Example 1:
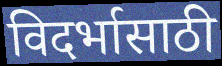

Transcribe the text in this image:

विदर्भासाठी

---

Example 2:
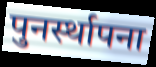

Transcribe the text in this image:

पुनर्स्थापना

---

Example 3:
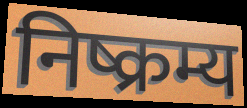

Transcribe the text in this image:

निष्क्रम्य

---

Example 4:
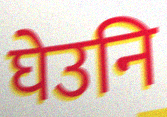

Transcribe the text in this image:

घेउनि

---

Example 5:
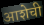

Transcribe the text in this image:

आशेची